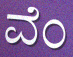
ವೆಂ